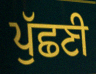
ਪੁੱਛਣੀ